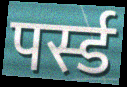
पर्स्ड